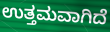
ಉತ್ತಮವಾಗಿದೆ